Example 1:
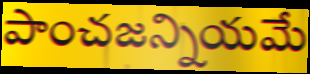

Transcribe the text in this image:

పాంచజన్నియమే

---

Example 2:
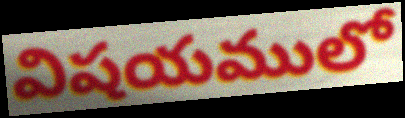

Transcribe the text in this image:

విషయములో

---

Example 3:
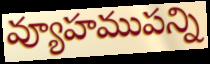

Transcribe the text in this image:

వ్యూహముపన్ని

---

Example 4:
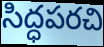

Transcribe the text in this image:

సిద్ధపరచి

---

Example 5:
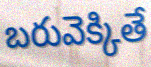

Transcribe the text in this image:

బరువెక్కితే